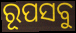
ରୂପସବୁ